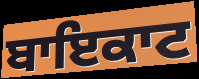
ਬਾਇਕਾਟ